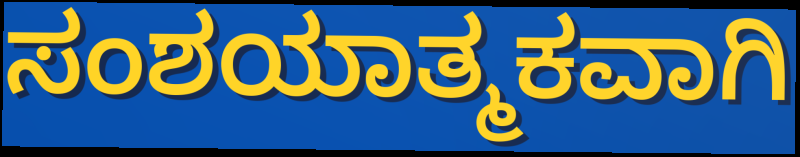
ಸಂಶಯಾತ್ಮಕವಾಗಿ